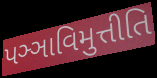
પઞ્ઞાવિમુત્તીતિ